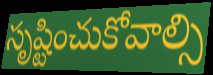
సృష్టించుకోవాల్సి